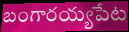
బంగారయ్యపేట